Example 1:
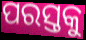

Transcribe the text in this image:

ପରସ୍ତକୁ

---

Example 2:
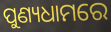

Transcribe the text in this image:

ପୁଣ୍ୟଧାମରେ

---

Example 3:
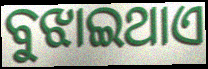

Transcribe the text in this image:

ବୁଝାଇଥାଏ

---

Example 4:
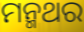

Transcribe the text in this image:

ମନ୍ମଥର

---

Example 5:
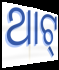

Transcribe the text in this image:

ଥାଟ୍